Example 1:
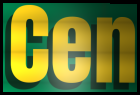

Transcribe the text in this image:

Cen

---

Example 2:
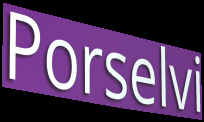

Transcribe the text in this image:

Porselvi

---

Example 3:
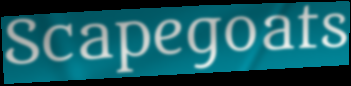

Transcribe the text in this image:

Scapegoats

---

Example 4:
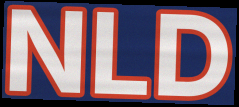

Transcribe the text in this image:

NLD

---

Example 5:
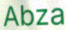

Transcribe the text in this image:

Abza